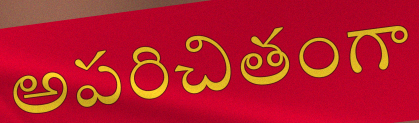
అపరిచితంగా